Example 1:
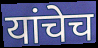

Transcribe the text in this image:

यांचेच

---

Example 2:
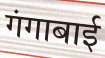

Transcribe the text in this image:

गंगाबाई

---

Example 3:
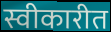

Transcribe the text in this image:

स्वीकारीत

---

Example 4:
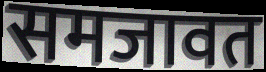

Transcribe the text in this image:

समजावत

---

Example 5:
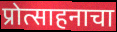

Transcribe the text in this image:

प्रोत्साहनाचा